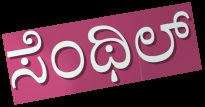
ಸೆಂಥಿಲ್